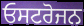
ਓਸਟਰੋਜਨ